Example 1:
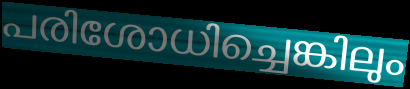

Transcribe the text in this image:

പരിശോധിച്ചെങ്കിലും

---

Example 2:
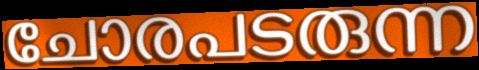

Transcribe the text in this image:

ചോരപടരുന്ന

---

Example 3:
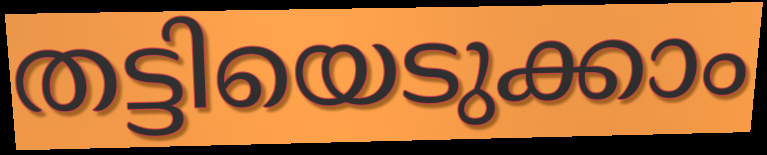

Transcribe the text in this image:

തട്ടിയെടുക്കാം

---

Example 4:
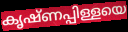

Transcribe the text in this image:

കൃഷ്ണപ്പിള്ളയെ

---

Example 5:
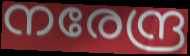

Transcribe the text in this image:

നരേന്ദ്ര